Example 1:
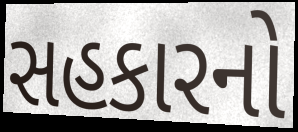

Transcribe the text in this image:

સહકારનો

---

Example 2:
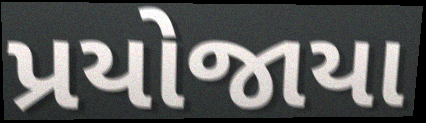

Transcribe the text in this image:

પ્રયોજાયા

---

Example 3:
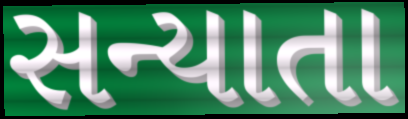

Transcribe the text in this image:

સન્યાતા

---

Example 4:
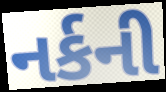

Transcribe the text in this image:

નર્કની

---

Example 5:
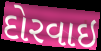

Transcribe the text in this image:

દોરવાઇ